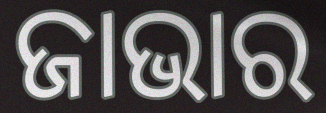
ଜାଭାର